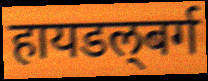
हायडल्‌बर्ग